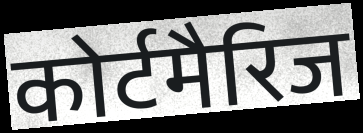
कोर्टमैरिज